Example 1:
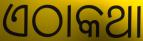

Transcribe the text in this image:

ଏଠାକଥା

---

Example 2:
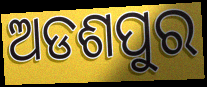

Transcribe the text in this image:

ଅଡଶପୁର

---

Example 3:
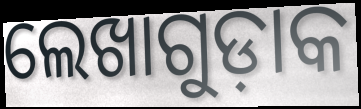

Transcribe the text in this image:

ଲେଖାଗୁଡ଼ାକ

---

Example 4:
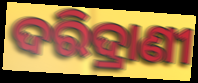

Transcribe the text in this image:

ଦରିଦ୍ରାଣୀ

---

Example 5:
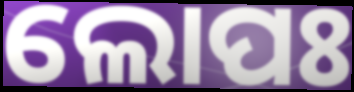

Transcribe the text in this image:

ଲୋପଃ